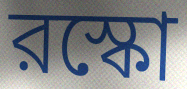
রস্কো